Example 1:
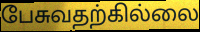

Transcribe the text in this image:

பேசுவதற்கில்லை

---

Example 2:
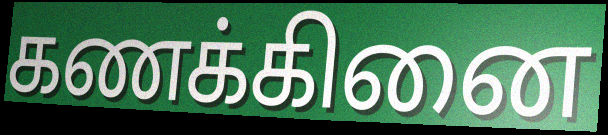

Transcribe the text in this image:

கணக்கினை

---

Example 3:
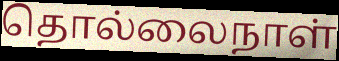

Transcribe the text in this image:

தொல்லைநாள்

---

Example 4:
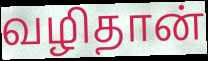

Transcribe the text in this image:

வழிதான்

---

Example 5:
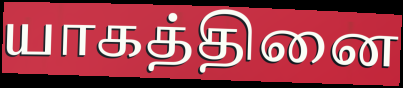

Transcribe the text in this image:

யாகத்தினை